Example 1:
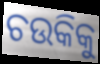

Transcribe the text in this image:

ଚଉକିକୁ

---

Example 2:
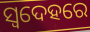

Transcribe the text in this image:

ସ୍ଵଦେହରେ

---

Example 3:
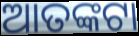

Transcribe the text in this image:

ଆତଙ୍କଟା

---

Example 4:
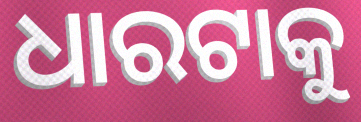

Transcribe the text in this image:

ଧାରଟାକୁ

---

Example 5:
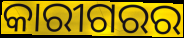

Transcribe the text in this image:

କାରୀଗରର